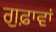
ਗੁਫ਼ਾਵਾਂ